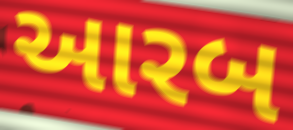
આરબ